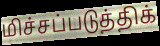
மிச்சப்படுத்திக்